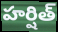
హర్షిత్